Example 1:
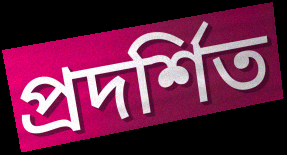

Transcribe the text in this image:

প্রদর্শিত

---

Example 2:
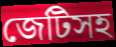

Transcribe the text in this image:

জেটিসহ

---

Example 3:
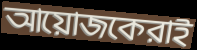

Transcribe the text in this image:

আয়োজকেরাই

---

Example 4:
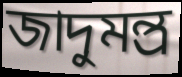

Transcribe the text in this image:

জাদুমন্ত্র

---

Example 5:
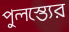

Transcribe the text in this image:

পুলস্ত্যের